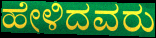
ಹೇಳಿದವರು